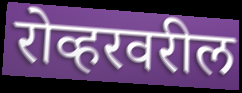
रोव्हरवरील